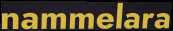
nammelara